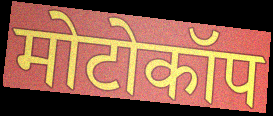
मोटोकॉप